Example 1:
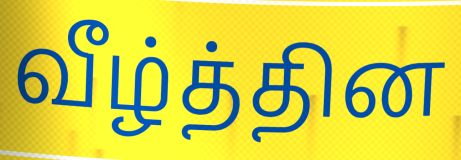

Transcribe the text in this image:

வீழ்த்தின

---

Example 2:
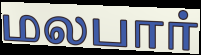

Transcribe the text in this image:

மலபார்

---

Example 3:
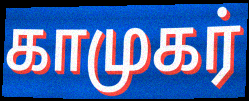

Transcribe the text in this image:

காமுகர்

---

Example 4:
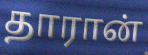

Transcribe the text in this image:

தாரான்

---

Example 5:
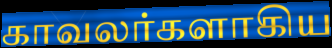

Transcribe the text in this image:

காவலர்களாகிய